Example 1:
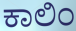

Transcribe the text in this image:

ಕಾಲಿಂ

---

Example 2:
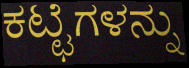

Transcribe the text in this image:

ಕಟ್ಟೆಗಳನ್ನು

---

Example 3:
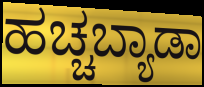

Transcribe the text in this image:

ಹಚ್ಚಬ್ಯಾಡಾ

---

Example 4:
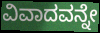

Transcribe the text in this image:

ವಿವಾದವನ್ನೇ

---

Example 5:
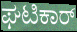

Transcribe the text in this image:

ಘಟಿಕಾರ್